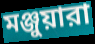
মঞ্জুয়ারা